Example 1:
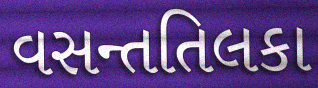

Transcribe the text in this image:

વસન્તતિલકા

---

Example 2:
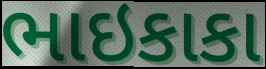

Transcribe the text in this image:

ભાઇકાકા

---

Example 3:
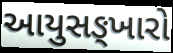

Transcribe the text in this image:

આયુસઙ્ખારો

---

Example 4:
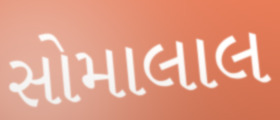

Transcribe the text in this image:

સોમાલાલ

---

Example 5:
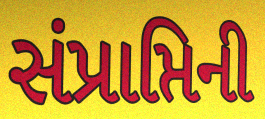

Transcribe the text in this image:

સંપ્રાપ્તિની